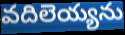
వదిలెయ్యను